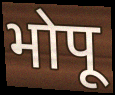
भोपू